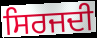
ਸਿਰਜਦੀ